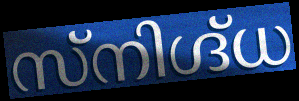
സ്നിഗ്ദ്ധ